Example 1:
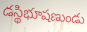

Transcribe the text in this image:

డస్థిభూషణుండు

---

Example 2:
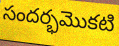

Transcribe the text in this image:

సందర్భమొకటి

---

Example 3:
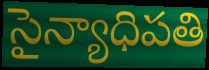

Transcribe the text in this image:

సైన్యాధిపతి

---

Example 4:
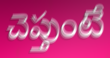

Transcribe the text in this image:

చెప్తుంటే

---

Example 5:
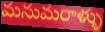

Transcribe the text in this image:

మనుమరాళ్ళు